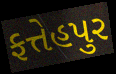
ફત્તેહપુર